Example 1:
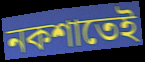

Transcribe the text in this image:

নকশাতেই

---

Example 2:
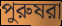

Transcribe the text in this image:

পুরুষরা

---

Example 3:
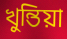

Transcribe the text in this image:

খুন্তিয়া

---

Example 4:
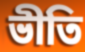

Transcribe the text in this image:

ভীতি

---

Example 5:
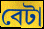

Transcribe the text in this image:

বেটা